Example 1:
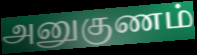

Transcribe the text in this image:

அனுகுணம்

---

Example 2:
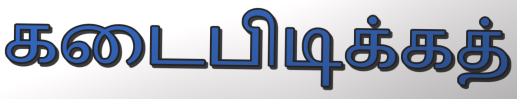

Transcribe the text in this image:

கடைபிடிக்கத்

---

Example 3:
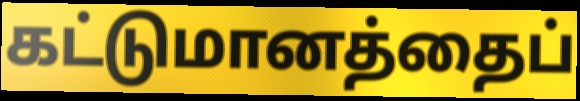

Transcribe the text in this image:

கட்டுமானத்தைப்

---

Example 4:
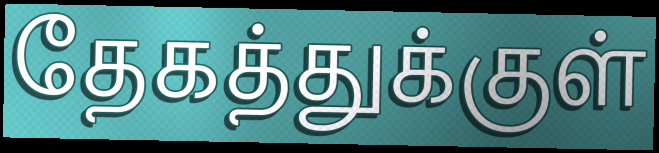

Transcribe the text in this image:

தேகத்துக்குள்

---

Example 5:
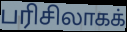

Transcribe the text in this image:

பரிசிலாகக்